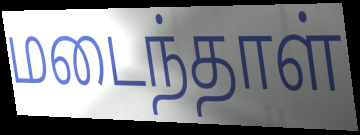
மடைந்தாள்